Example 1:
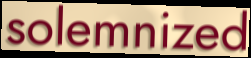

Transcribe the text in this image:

solemnized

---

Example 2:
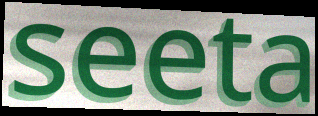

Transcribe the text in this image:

seeta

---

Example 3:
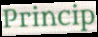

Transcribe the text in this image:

Princip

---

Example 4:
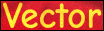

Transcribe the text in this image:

Vector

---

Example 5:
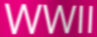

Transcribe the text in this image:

WWII